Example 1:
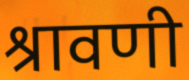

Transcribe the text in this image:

श्रावणी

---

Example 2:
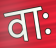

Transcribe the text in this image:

वाः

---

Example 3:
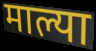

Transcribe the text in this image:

माल्या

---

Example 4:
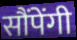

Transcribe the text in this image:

सौंपेंगी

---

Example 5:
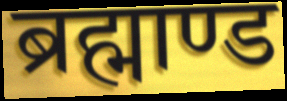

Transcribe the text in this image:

ब्रह्माण्ड